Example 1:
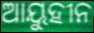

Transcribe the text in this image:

ଆୟୁହୀନ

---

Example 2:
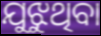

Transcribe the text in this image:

ଯୁଝୁଥିବା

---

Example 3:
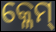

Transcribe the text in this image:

କ୍ଳେମ୍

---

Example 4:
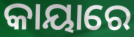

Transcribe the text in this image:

କାୟାରେ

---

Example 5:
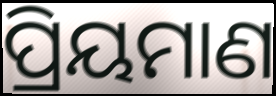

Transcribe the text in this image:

ପ୍ରିୟମାଣ